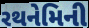
રથનેમિની